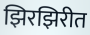
झिरझिरीत